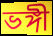
ভঙ্গী